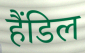
हैंडिल